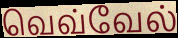
வெவ்வேல்